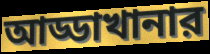
আড্ডাখানার